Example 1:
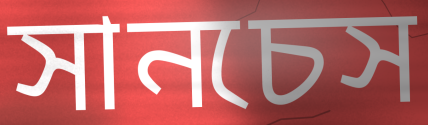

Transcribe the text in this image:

সানচেস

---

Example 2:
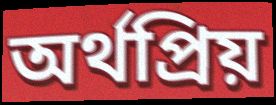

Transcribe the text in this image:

অর্থপ্রিয়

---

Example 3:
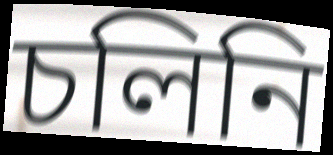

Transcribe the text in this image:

চলিনি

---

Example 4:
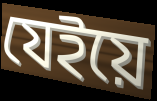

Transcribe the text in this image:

যেইয়ে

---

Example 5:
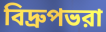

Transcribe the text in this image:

বিদ্রুপভরা